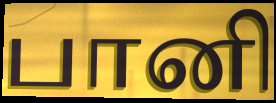
பானி